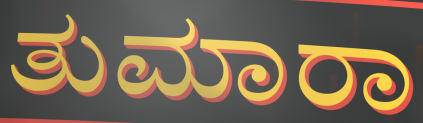
ತುಮಾರಾ